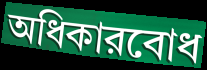
অধিকারবোধ